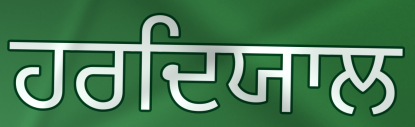
ਹਰਦਿਯਾਲ